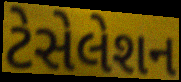
ટેસેલેશન